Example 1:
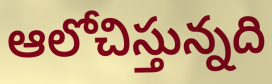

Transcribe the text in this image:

ఆలోచిస్తున్నది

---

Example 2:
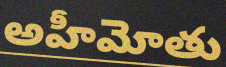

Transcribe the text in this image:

అహీమోతు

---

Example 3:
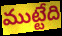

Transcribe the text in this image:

ముట్టేది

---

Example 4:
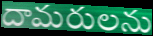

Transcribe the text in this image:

దామరులను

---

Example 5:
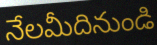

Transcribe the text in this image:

నేలమీదినుండి